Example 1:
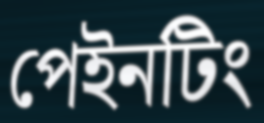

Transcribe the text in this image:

পেইনটিং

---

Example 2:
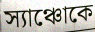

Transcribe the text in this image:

স্যাঞ্চোকে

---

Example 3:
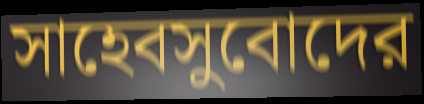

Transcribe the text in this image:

সাহেবসুবোদের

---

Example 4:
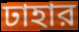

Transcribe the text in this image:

ঢাহার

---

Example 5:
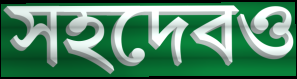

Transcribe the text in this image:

সহদেবও